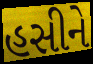
હસીને